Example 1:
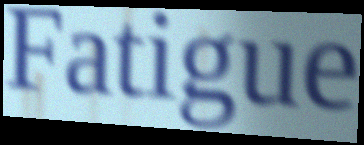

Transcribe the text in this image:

Fatigue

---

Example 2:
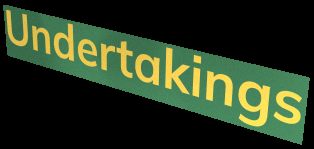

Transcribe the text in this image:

Undertakings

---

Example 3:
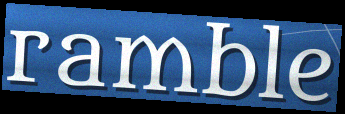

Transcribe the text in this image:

ramble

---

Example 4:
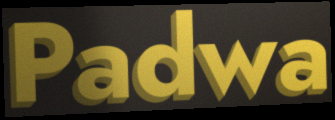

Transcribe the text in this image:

Padwa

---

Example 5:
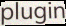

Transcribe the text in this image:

plugin